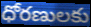
ధోరణులకు